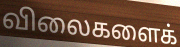
விலைகளைக்